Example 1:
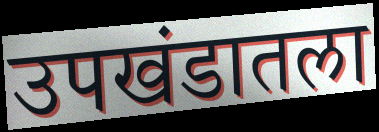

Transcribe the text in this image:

उपखंडातला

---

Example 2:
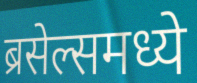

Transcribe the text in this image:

ब्रसेल्समध्ये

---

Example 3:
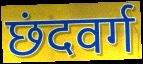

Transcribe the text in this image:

छंदवर्ग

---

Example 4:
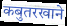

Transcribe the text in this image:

कबुतरखाने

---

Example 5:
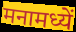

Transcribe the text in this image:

मनामध्यें